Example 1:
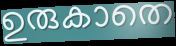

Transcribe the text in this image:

ഉരുകാതെ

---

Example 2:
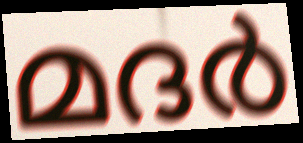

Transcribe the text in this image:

മദർ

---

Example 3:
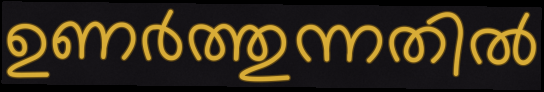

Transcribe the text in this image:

ഉണർത്തുന്നതിൽ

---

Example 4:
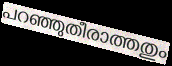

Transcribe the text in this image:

പറഞ്ഞുതീരാത്തതും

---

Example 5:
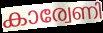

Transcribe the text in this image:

കാര്വേണി